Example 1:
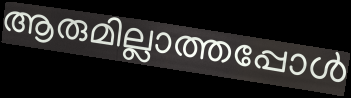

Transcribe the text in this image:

ആരുമില്ലാത്തപ്പോൾ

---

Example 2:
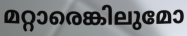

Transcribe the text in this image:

മറ്റാരെങ്കിലുമോ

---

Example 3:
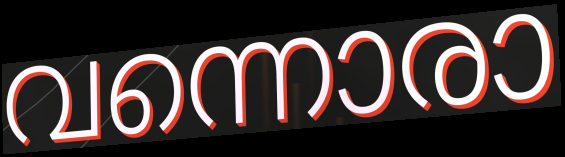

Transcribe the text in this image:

വന്നൊരാ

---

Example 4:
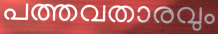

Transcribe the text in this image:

പത്തവതാരവും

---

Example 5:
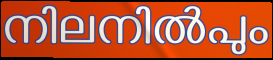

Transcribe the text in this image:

നിലനിൽപും